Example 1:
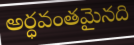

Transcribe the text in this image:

అర్ధవంతమైనది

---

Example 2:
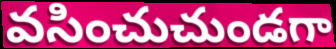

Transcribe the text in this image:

వసించుచుండగా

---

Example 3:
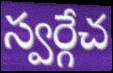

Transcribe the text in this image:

స్వర్గేచ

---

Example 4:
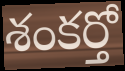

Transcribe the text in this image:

శంకర్తో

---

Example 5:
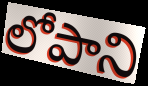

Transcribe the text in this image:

లోపాని